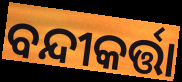
ବନ୍ଦୀକର୍ତ୍ତା